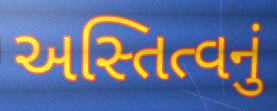
અસ્તિત્વનું